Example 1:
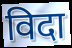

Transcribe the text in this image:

विदा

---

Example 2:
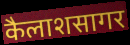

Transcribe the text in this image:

कैलाशसागर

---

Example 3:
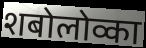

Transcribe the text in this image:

शबोलोव्का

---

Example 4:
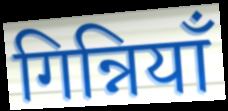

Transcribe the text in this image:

गिन्नियाँ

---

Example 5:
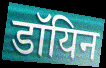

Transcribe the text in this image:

डॉयिन